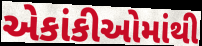
એકાંકીઓમાંથી